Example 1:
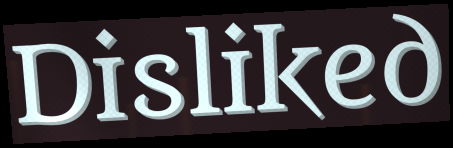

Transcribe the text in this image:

Disliked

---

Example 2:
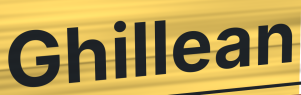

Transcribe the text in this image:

Ghillean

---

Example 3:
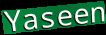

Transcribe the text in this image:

Yaseen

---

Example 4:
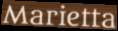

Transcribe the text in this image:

Marietta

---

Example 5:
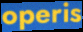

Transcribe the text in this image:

operis